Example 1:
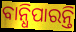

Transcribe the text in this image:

ବାନ୍ଧିପାରନ୍ତି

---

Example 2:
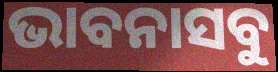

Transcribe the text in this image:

ଭାବନାସବୁ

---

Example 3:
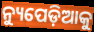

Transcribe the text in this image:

ନ୍ୟୁପେଡ଼ିଆକୁ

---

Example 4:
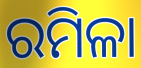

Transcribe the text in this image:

ରମିଳା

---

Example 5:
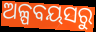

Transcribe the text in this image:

ଅଳ୍ପବୟସରୁ